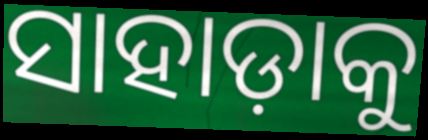
ସାହାଡ଼ାକୁ